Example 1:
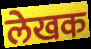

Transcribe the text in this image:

लेखक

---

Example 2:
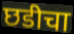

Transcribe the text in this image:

छडीचा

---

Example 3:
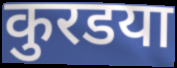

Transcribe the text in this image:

कुरडया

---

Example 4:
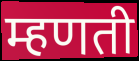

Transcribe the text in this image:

म्हणती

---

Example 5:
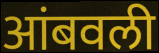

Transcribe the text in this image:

आंबवली